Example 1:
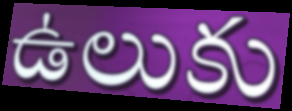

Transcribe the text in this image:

ఉలుకు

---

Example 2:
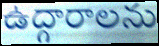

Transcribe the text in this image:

ఉద్గారాలను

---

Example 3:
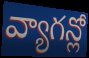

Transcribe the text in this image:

వ్యాగన్లో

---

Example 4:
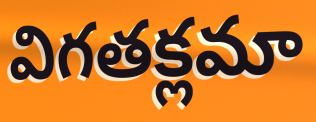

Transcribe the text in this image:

విగతక్లమా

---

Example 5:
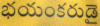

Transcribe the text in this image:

భయంకరుడై